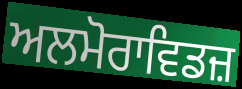
ਅਲਮੋਰਾਵਿਡਜ਼